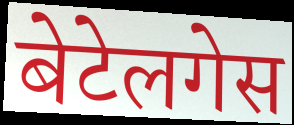
बेटेलगेस